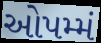
ઓપમ્મં